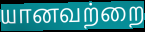
யானவற்றை